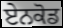
ਏਨਕੋਡ